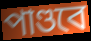
পাণ্ডবে